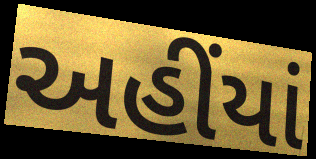
અહીંયાં